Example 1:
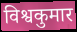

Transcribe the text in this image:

विश्वकुमार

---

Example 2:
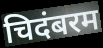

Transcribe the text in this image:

चिदंबरम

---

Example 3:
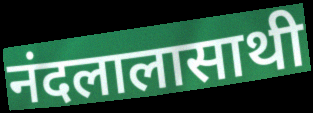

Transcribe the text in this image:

नंदलालासाथी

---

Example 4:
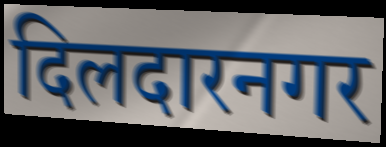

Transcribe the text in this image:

दिलदारनगर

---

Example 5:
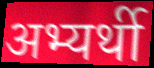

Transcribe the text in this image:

अभ्यर्थी